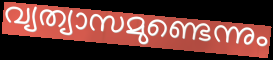
വ്യത്യാസമുണ്ടെന്നും